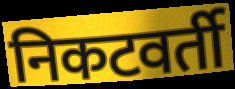
निकटवर्ती